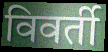
विवर्ती